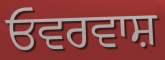
ਓਵਰਵਾਸ਼